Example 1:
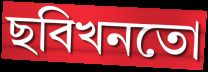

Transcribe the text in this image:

ছবিখনতো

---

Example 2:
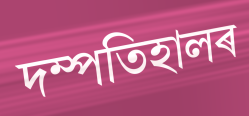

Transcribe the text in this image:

দম্পতিহালৰ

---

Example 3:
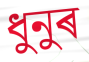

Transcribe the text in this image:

ধুনুৰ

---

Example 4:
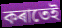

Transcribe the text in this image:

কৰাতেই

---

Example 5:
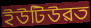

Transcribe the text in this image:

ইউটিউৱত